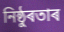
নিষ্ঠুৰতাৰ